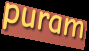
puram